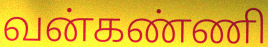
வன்கண்ணி